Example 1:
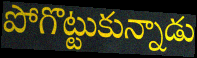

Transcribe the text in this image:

పోగొట్టుకున్నాడు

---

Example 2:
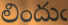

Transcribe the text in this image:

లిందుఁ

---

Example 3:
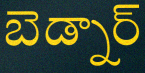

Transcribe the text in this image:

బెడ్నార్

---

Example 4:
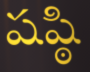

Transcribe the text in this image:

షష్ఠి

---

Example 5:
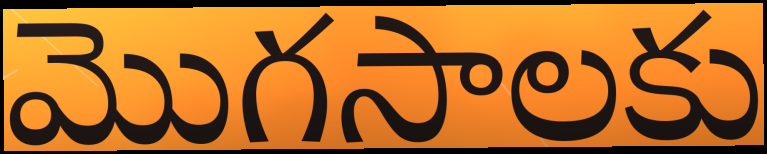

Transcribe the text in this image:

మొగసాలకు